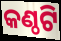
କଣ୍ଠଟି